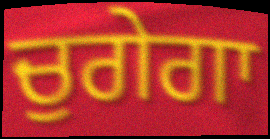
ਚੁਗੇਗਾ